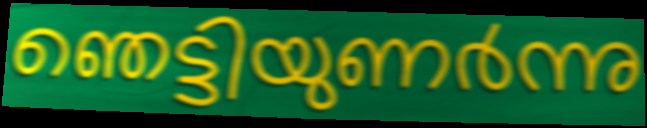
ഞെട്ടിയുണർന്നു